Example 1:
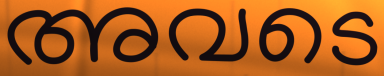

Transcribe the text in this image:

അവടെ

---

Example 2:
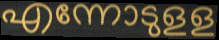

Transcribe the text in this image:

എന്നോടുളള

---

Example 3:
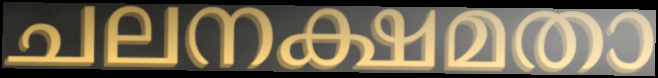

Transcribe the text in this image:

ചലനക്ഷമതാ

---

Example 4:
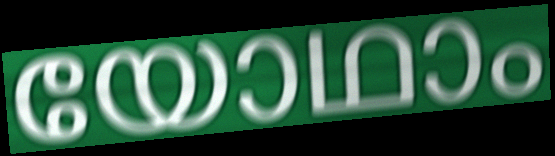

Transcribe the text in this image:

യോഥാം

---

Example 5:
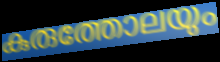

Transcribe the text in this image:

കുരുത്തോലയും